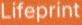
Lifeprint